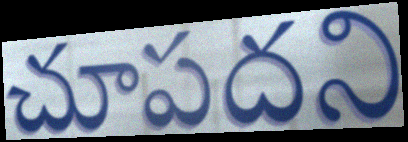
చూపదని